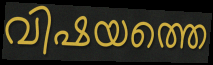
വിഷയത്തെ